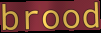
brood